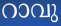
റാവു